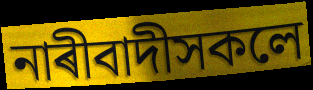
নাৰীবাদীসকলে